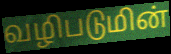
வழிபடுமின்